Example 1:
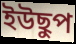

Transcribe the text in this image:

ইউছুপ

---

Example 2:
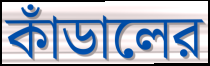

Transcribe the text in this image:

কাঁডালের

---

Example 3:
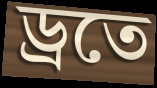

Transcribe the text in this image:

ড্রতে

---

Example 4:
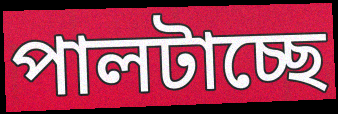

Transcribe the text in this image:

পালটাচ্ছে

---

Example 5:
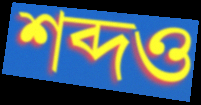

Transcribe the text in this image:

শব্দও